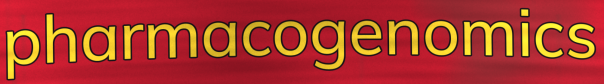
pharmacogenomics